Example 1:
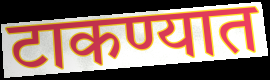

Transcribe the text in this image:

टाकण्यात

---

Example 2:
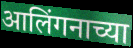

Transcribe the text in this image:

आलिंगनाच्या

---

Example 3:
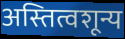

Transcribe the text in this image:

अस्तित्वशून्य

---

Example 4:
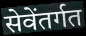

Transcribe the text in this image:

सेवेंतर्गत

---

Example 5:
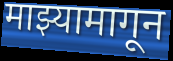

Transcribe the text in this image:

माझ्यामागून